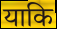
याकि